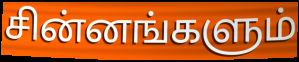
சின்னங்களும்